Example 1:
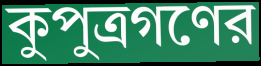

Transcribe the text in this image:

কুপুত্রগণের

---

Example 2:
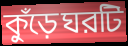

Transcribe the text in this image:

কুঁড়েঘরটি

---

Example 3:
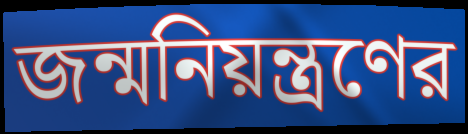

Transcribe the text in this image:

জন্মনিয়ন্ত্রণের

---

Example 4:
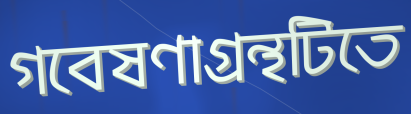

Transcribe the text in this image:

গবেষণাগ্রন্থটিতে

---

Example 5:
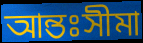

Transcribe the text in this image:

আন্তঃসীমা